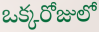
ఒక్కరోజులో